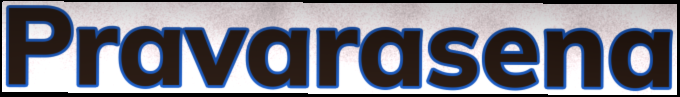
Pravarasena